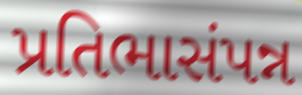
પ્રતિભાસંપન્ન